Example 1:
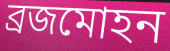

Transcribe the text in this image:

ব্ৰজমোহন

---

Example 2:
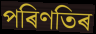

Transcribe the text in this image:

পৰিণতিৰ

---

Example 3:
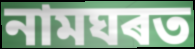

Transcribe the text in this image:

নামঘৰত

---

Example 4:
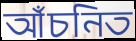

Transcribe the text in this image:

আঁচনিত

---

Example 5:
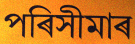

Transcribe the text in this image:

পৰিসীমাৰ